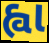
હ્વા